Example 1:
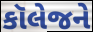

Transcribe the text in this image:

કૉલેજને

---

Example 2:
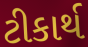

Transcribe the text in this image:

ટીકાર્થ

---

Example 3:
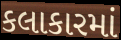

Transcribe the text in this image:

કલાકારમાં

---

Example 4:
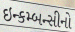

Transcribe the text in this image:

ઇન્કમ્બન્સીનો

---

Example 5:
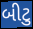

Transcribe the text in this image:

બીટુ